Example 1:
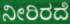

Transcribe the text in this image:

ನೀರಿರದೆ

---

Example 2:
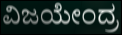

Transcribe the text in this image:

ವಿಜಯೇಂದ್ರ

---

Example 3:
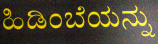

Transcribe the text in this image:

ಹಿಡಿಂಬೆಯನ್ನು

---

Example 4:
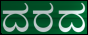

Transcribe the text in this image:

ದರದ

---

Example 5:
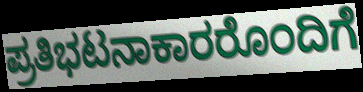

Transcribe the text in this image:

ಪ್ರತಿಭಟನಾಕಾರರೊಂದಿಗೆ